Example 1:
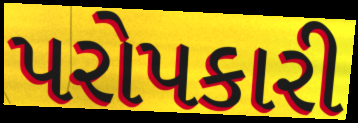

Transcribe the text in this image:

પરોપકારી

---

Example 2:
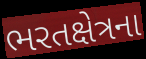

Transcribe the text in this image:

ભરતક્ષેત્રના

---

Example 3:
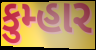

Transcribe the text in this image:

કુમ્હાર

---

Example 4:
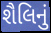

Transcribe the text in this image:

શૈલિનું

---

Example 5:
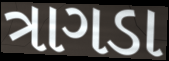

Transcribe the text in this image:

ત્રાગડા